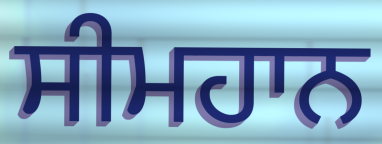
ਸੀਮਹਾਨ